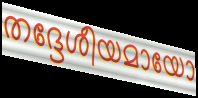
തദ്ദേശീയമായോ